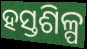
ହସ୍ତଶିଳ୍ପ